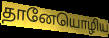
தானேயொழிய